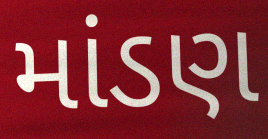
માંડણ